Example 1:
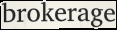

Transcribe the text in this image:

brokerage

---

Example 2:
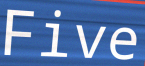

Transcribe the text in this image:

Five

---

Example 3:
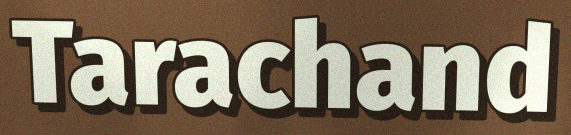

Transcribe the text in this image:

Tarachand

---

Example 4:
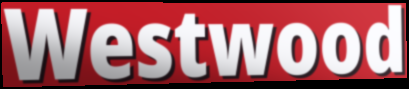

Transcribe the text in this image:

Westwood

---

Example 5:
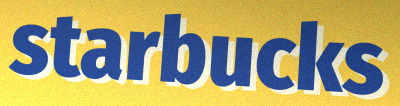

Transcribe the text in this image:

starbucks